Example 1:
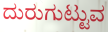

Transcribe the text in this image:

ದುರುಗುಟ್ಟುವ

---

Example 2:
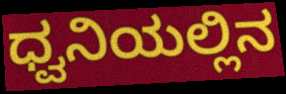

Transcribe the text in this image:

ಧ್ವನಿಯಲ್ಲಿನ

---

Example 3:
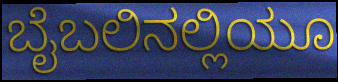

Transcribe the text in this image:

ಬೈಬಲಿನಲ್ಲಿಯೂ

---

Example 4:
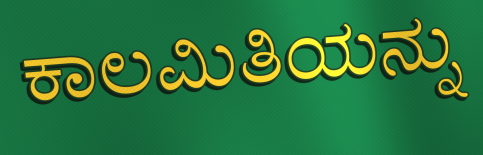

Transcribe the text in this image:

ಕಾಲಮಿತಿಯನ್ನು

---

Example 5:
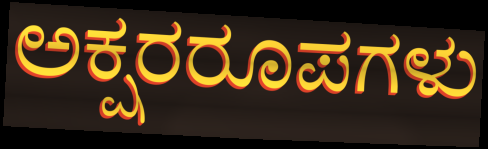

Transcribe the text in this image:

ಅಕ್ಷರರೂಪಗಳು